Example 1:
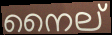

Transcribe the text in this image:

നൈല്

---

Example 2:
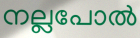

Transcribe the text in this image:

നല്ലപോൽ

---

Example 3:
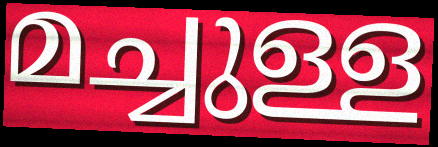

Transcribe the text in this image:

മച്ചുള്ള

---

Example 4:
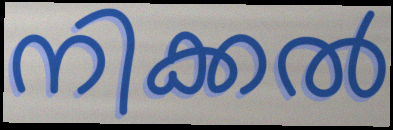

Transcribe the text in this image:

നിക്കൽ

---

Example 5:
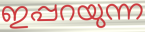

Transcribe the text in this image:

ഇപ്പറയുന്ന